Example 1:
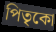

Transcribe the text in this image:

পিতৃকো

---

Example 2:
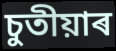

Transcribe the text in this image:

চুতীয়াৰ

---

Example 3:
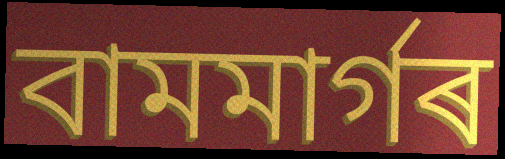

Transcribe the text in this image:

বামমাৰ্গৰ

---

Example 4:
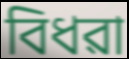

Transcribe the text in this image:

বিধৱা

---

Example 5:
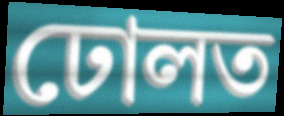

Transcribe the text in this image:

ঢোলত